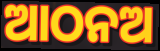
ଆଠନଅ